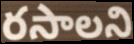
రసాలని